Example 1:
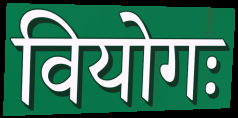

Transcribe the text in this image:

वियोगः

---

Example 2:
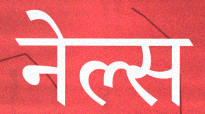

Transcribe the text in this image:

नेल्स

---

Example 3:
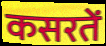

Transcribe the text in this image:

कसरतें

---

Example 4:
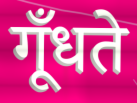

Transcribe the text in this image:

गूँधते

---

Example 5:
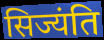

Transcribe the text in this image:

सिज्यंति